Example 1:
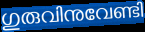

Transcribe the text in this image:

ഗുരുവിനുവേണ്ടി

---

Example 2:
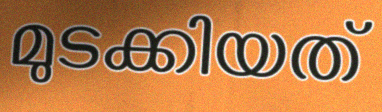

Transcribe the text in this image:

മുടക്കിയത്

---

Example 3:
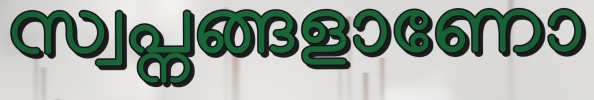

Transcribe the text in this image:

സ്വപ്നങ്ങളാണോ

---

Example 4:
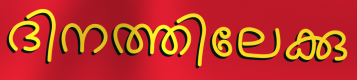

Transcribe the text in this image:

ദിനത്തിലേക്കു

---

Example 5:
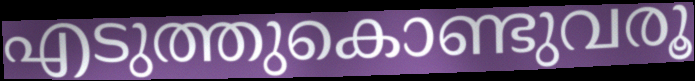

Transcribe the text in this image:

എടുത്തുകൊണ്ടുവരൂ